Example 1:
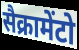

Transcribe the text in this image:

सैक्रामेंटो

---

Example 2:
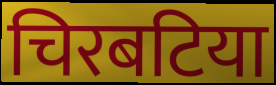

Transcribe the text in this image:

चिरबटिया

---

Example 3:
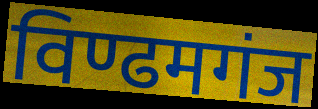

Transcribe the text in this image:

विण्ढमगंज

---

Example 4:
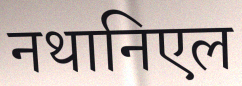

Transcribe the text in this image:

नथानिएल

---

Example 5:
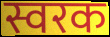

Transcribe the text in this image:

स्वरक